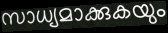
സാധ്യമാക്കുകയും